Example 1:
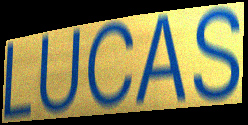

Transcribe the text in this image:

LUCAS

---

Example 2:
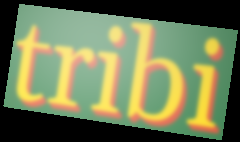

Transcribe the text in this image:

tribi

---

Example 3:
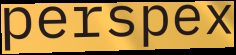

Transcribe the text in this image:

perspex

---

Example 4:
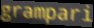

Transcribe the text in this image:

grampari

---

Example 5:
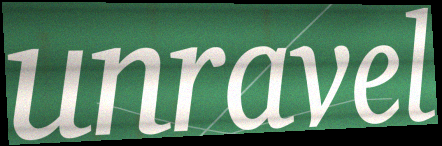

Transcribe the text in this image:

unravel